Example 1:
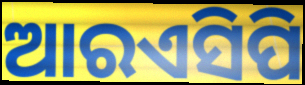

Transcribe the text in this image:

ଆରଏସିପି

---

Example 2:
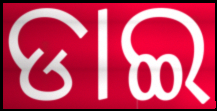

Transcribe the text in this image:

ଡାଇ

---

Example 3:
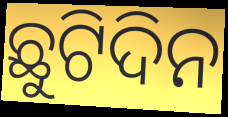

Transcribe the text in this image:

ଛୁଟିଦିନ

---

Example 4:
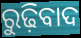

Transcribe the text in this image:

ରୁଢ଼ିବାଦ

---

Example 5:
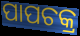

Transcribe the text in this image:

ପାପଚକ୍ର